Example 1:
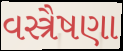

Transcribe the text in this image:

વસ્ત્રૈષણા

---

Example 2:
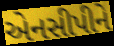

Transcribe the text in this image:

એનસીપીને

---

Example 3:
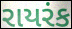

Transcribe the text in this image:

રાયરંક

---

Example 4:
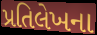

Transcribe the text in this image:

પ્રતિલેખના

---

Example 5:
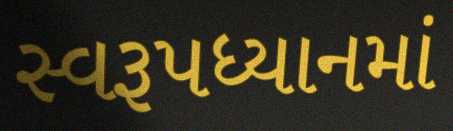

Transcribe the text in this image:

સ્વરૂપધ્યાનમાં